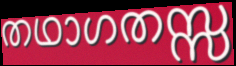
തഥാഗതസ്സ